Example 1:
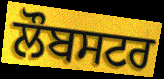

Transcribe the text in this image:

ਲੌਬਸਟਰ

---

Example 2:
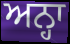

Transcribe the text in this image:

ਅਨ੍ਹਾ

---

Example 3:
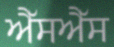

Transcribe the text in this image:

ਐੱਸਐੱਸ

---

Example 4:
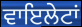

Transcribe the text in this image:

ਵਾਇਲੇਟਾਂ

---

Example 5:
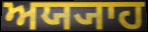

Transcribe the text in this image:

ਅਯ੍ਯਾਹ